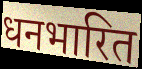
धनभारित